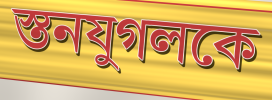
স্তনযুগলকে